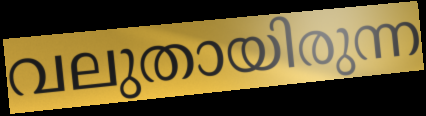
വലുതായിരുന്ന